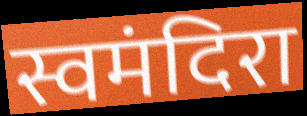
स्वमंदिरा